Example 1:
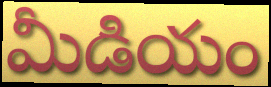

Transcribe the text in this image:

మీడియం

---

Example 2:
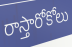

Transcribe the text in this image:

రాస్తారోకోలు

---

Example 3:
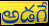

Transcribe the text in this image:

అడగే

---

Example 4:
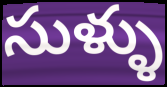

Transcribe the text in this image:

సుళ్ళు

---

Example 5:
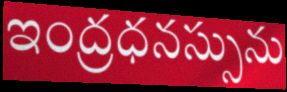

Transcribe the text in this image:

ఇంద్రధనస్సును